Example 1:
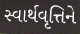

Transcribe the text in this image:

સ્વાર્થવૃત્તિને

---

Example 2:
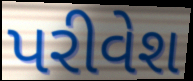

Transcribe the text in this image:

પરીવેશ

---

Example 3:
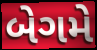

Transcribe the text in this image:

બેગમે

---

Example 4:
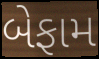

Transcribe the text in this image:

બેફામ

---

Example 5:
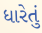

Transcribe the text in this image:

ધારેતું